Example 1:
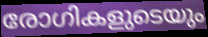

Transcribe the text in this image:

രോഗികളുടെയും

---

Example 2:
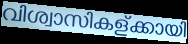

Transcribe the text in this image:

വിശ്വാസികള്ക്കായി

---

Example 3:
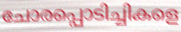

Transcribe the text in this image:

ചോരപ്പൊടിച്ചികളെ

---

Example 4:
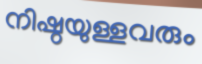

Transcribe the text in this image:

നിഷ്ഠയുള്ളവരും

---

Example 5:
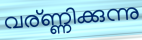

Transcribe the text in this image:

വര്ണ്ണിക്കുന്നു